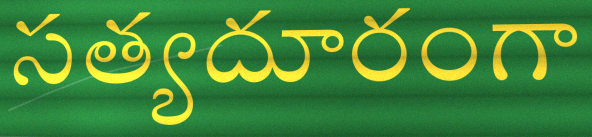
సత్యదూరంగా